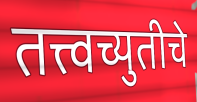
तत्त्वच्युतीचे